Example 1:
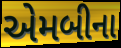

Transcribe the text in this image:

એમબીના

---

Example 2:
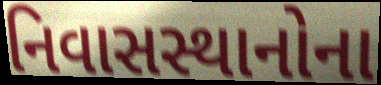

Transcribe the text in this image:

નિવાસસ્થાનોના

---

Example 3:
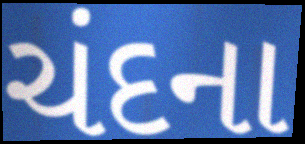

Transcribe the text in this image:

ચંદના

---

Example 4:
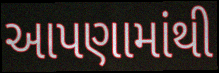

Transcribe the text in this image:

આપણામાંથી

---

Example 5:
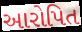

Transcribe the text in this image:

આરોપિત